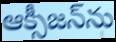
ఆక్సీజన్‌ను